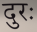
दुरः